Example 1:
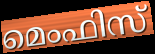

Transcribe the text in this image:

മെംഫിസ്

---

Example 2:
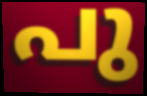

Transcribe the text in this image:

പു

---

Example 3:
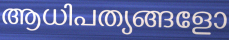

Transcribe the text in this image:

ആധിപത്യങ്ങളോ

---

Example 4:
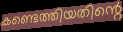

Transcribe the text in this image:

കണ്ടെത്തിയതിന്റെ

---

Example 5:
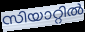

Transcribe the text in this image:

സിയാറ്റിൽ